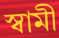
স্বামী